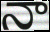
నా